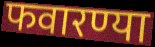
फवारण्या